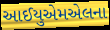
આઈયુએમએલના